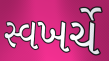
સ્વખર્ચે